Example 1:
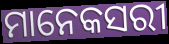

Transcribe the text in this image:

ମାନେକସରୀ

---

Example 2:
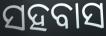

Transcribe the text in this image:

ସହବାସ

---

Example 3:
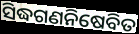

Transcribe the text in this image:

ସିଦ୍ଧଗଣନିଷେବିତ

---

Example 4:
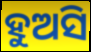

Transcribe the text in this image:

ହୁଅସି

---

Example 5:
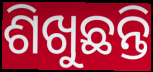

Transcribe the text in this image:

ଶିଖୁଛନ୍ତି